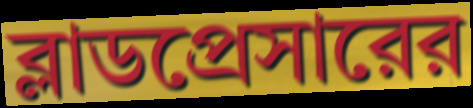
ব্লাডপ্রেসারের